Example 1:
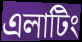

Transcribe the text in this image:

এলাটিং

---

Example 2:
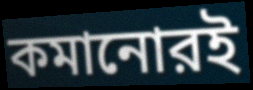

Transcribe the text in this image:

কমানোরই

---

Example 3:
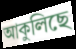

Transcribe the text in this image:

আকুলিছে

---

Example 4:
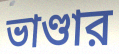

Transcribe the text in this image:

ভাণ্ডার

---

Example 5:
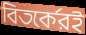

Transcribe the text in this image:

বিতর্কেরই